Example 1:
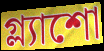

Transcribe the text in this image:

গ্ল্যাশো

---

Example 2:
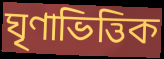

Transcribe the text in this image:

ঘৃণাভিত্তিক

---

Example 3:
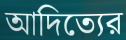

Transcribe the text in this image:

আদিত্যের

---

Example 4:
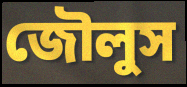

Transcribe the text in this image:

জৌলুস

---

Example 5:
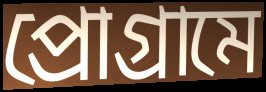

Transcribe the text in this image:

প্রোগ্রামে